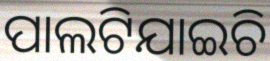
ପାଲଟିଯାଇଚି